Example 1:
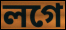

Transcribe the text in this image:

লগে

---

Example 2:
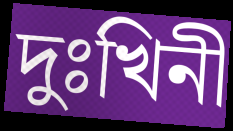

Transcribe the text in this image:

দুঃখিনী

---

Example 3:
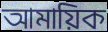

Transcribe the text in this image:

আমায়িক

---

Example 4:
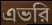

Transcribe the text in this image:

এভরি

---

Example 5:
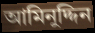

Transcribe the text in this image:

আমিনুদ্দিন